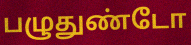
பழுதுண்டோ